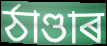
ঠাণ্ডাৰ